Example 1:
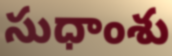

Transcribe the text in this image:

సుధాంశు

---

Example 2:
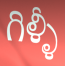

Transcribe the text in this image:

గిళ్ళీ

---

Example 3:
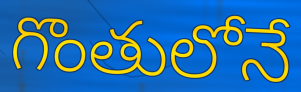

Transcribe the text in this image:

గొంతులోనే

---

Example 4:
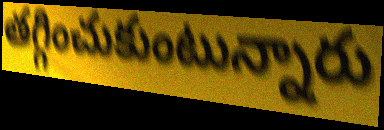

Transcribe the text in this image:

తగ్గించుకుంటున్నారు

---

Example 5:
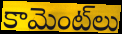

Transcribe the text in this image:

కామెంట్‌లు